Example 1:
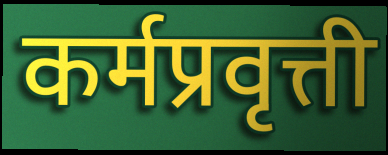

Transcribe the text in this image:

कर्मप्रवृत्ती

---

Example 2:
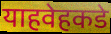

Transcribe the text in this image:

याहवेहकडे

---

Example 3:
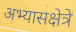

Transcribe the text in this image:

अभ्यासक्षेत्रे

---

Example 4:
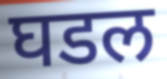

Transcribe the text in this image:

घडल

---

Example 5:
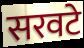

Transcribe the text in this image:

सरवटे